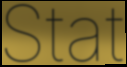
Stat